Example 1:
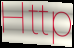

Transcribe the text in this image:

Http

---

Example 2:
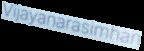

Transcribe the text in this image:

Vijayanarasimhan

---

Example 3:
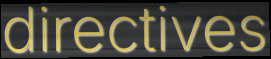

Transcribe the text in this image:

directives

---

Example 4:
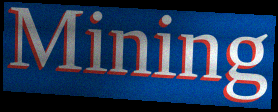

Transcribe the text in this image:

Mining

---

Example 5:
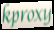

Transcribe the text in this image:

kproxy